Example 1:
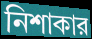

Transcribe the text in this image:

নিশাকার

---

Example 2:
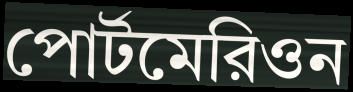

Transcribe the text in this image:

পোর্টমেরিওন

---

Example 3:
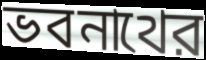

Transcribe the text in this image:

ভবনাথের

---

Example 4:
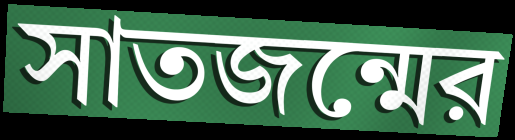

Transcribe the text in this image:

সাতজন্মের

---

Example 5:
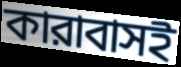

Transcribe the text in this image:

কারাবাসই